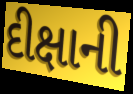
દીક્ષાની